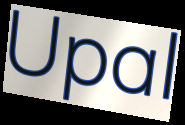
Upal